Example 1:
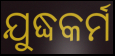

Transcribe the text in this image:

ଯୁଦ୍ଧକର୍ମ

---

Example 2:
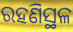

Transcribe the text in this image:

ରହଣିସ୍ଥଳ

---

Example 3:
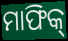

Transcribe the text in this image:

ମାଫିକ୍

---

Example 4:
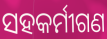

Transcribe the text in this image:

ସହକର୍ମୀଗଣ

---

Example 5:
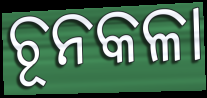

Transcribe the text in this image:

ଚୂନକଳା